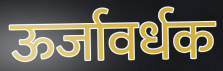
ऊर्जावर्धक